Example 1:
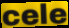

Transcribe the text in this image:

cele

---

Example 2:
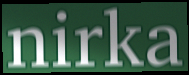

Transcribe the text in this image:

nirka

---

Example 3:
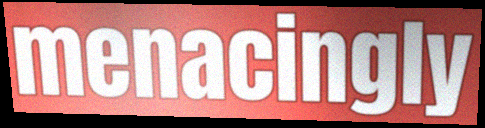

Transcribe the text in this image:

menacingly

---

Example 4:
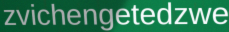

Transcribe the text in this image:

zvichengetedzwe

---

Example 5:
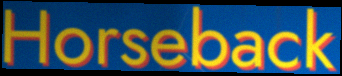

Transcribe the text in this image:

Horseback